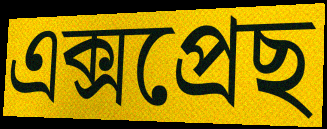
এক্সপ্ৰেছ